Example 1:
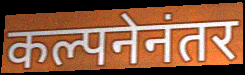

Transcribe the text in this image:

कल्पनेनंतर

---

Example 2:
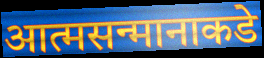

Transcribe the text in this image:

आत्मसन्मानाकडे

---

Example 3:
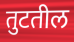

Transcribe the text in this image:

तुटतील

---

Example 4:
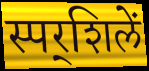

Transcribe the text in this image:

स्पर्शिलें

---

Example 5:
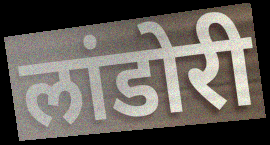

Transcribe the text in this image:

लांडोरी